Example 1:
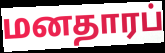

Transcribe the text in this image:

மனதாரப்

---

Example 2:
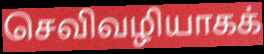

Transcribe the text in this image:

செவிவழியாகக்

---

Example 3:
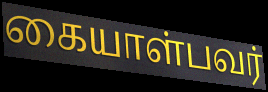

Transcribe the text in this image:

கையாள்பவர்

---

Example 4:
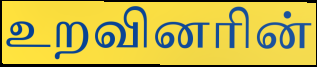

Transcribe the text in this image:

உறவினரின்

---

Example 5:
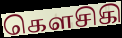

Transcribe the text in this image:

கௌசிகி